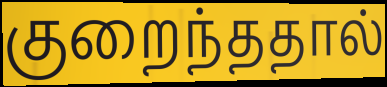
குறைந்ததால்